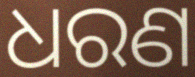
ଧରଣ